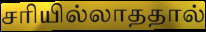
சரியில்லாததால்